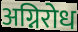
अग्निरोध